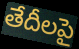
తేదీలపై